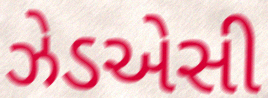
ઝેડએસી